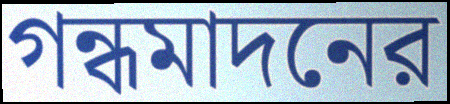
গন্ধমাদনের